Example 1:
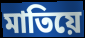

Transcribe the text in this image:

মাতিয়ে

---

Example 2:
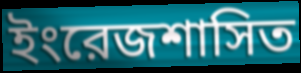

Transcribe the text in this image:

ইংরেজশাসিত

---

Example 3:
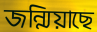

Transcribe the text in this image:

জন্মিয়াছে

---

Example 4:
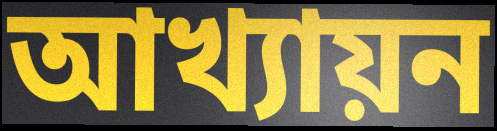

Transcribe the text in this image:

আখ্যায়ন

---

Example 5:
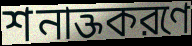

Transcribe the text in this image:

শনাক্তকরণে